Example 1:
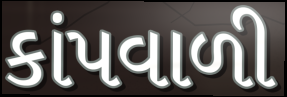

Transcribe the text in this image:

કાંપવાળી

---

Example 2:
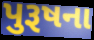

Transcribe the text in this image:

પુરૂષના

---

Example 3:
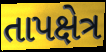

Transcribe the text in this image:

તાપક્ષેત્ર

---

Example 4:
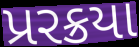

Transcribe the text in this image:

પ્રરક્રયા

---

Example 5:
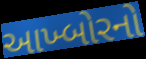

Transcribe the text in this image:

આખ્બોરનો